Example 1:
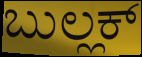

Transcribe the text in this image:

ಬುಲ್ಲಕ್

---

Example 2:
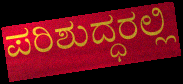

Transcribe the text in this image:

ಪರಿಶುದ್ಧರಲ್ಲಿ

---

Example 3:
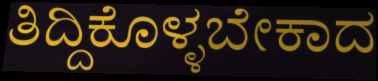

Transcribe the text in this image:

ತಿದ್ದಿಕೊಳ್ಳಬೇಕಾದ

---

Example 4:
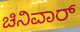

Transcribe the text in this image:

ಚಿನಿವಾರ್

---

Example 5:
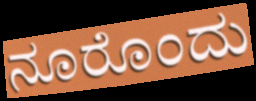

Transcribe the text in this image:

ನೂರೊಂದು